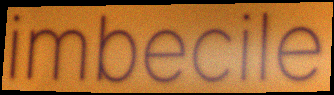
imbecile